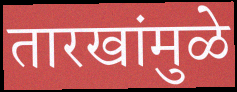
तारखांमुळे